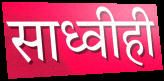
साध्वीही